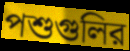
পশুগুলির